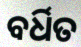
ବର୍ଧିତ